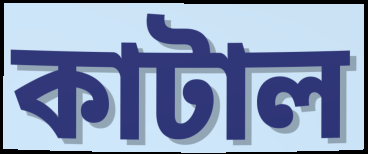
কাটাল